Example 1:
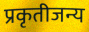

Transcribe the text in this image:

प्रकृतीजन्य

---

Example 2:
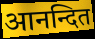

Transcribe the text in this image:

आनन्दित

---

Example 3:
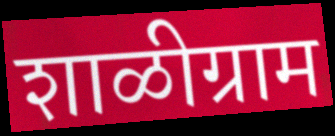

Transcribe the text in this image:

शाळीग्राम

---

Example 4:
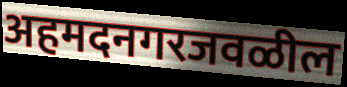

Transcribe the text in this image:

अहमदनगरजवळील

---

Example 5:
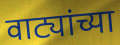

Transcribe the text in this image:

वाट्यांच्या